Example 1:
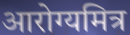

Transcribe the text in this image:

आरोग्यमित्र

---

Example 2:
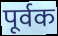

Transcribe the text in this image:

पूर्वक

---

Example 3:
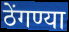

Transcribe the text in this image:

ठेंगण्या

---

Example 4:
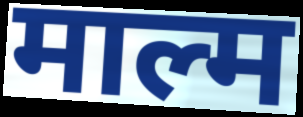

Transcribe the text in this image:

माल्म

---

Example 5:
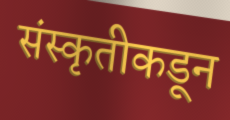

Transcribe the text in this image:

संस्कृतीकडून